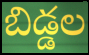
బిడ్డల